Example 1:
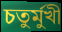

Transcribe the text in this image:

চতুর্মুখী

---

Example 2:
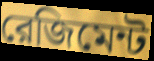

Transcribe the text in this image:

রেজিমেন্ট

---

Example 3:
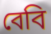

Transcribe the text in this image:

বেবি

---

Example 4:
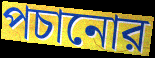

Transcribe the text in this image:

পচানোর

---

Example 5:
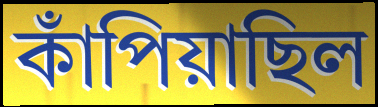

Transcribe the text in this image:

কাঁপিয়াছিল